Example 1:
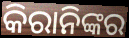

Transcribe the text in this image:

କିରାନିଙ୍କର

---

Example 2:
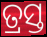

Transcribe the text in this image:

ତ୍ରସ୍ତ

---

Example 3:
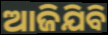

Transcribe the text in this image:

ଆଜିଯିବି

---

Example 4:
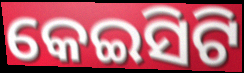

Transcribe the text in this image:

କେଇସିଟି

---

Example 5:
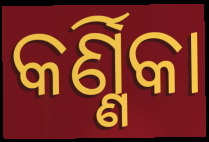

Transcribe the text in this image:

କର୍ଣ୍ଣିକା